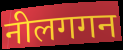
नीलगगन